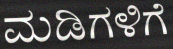
ಮಡಿಗಳಿಗೆ